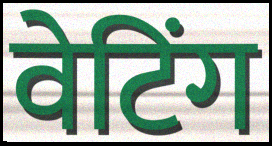
वेटिंग